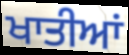
ਖਾਤੀਆਂ